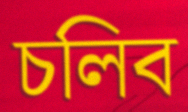
চলিব